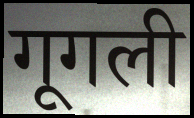
गूगली